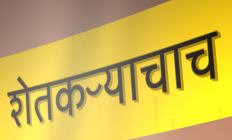
शेतकऱ्याचाच